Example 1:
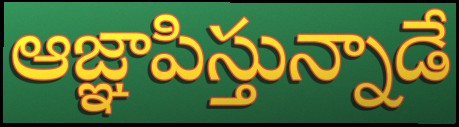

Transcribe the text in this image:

ఆజ్ఞాపిస్తున్నాడే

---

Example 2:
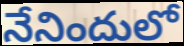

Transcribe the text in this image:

నేనిందులో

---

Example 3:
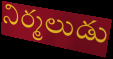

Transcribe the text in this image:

నిర్మలుడు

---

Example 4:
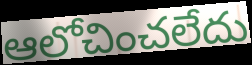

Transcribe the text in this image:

ఆలోచించలేదు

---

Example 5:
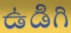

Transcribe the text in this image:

ఉడిగి